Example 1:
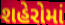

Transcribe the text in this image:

શહેરોમાં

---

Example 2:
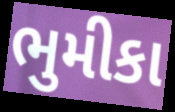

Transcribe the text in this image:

ભુમીકા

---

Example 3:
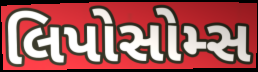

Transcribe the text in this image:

લિપોસોમ્સ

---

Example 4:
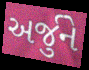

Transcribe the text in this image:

અર્જુને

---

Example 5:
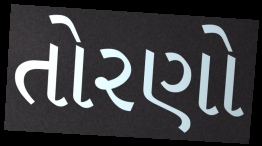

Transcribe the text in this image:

તોરણો